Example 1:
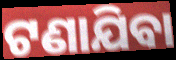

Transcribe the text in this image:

ଟଣାଯିବା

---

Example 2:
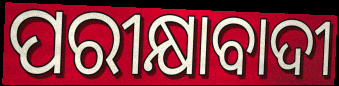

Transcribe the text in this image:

ପରୀକ୍ଷାବାଦୀ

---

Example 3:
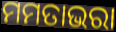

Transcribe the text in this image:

ମମତାଭରା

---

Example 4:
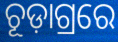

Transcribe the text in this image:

ଚୂଡ଼ାଗ୍ରରେ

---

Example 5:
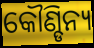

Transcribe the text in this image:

କୌଣ୍ଡିନ୍ୟ